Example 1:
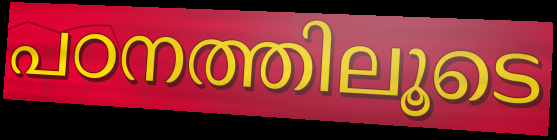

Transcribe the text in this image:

പഠനത്തിലൂടെ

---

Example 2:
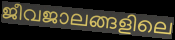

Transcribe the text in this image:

ജീവജാലങ്ങളിലെ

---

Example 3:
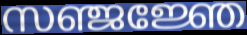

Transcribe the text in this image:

സഞ്ജജ്ഞേ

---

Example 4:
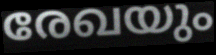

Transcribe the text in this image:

രേഖയും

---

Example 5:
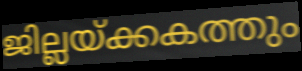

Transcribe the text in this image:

ജില്ലയ്ക്കകത്തും